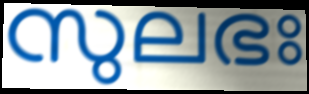
സുലഭഃ